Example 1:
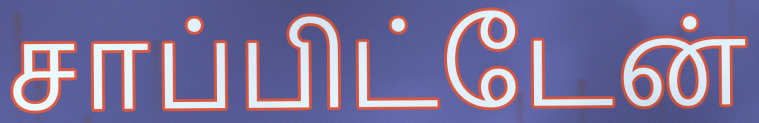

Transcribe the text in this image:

சாப்பிட்டேன்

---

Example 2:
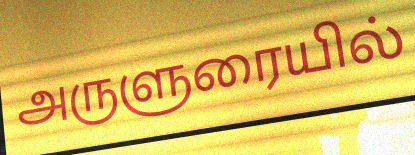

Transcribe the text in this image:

அருளுரையில்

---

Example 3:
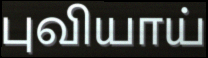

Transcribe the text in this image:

புவியாய்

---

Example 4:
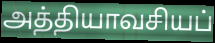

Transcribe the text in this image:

அத்தியாவசியப்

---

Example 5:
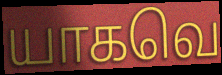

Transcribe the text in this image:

யாகவெ